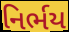
નિર્ભય